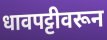
धावपट्टीवरून